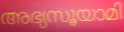
അഭ്യസൂയാമി